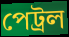
পেট্ৰল